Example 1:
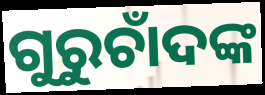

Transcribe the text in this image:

ଗୁରୁଚାଁଦଙ୍କ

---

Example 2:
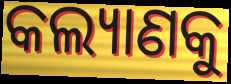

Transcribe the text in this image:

କଲ୍ୟାଣକୁ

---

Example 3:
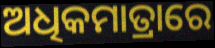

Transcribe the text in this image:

ଅଧିକମାତ୍ରାରେ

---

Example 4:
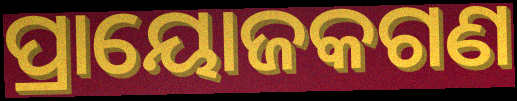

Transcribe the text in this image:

ପ୍ରାୟୋଜକଗଣ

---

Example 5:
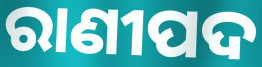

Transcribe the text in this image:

ରାଣୀପଦ